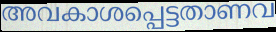
അവകാശപ്പെട്ടതാണവ